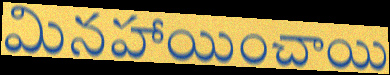
మినహాయించాయి